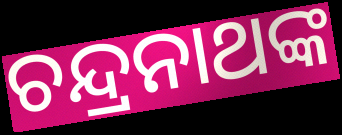
ଚନ୍ଦ୍ରନାଥଙ୍କ